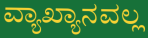
ವ್ಯಾಖ್ಯಾನವಲ್ಲ